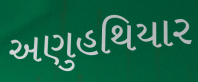
અણુહથિયાર